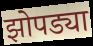
झोपड्या